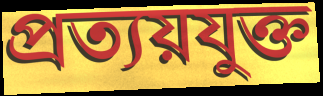
প্রত্যয়যুক্ত